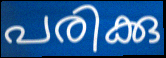
പരിക്കു